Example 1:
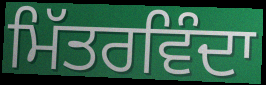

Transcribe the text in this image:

ਮਿੱਤਰਵਿੰਦਾ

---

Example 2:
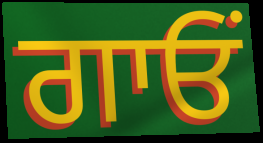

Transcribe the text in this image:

ਗਾਓਂ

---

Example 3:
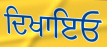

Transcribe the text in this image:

ਦਿਖਾਇਓ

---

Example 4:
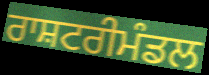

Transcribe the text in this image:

ਰਾਸ਼ਟਰੀਮੰਡਲ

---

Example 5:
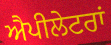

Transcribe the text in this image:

ਐਪੀਲੇਟਰਾਂ